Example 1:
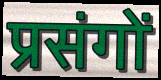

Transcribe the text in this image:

प्रसंगों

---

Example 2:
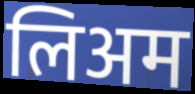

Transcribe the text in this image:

लिअम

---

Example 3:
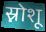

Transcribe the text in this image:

स्नोशू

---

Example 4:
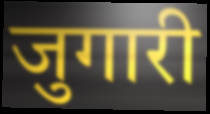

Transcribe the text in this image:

जुगारी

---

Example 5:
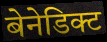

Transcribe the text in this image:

बेनेडिक्ट